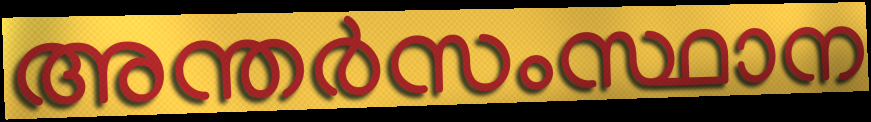
അന്തർസംസ്ഥാന